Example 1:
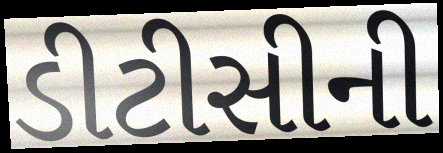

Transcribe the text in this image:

ડીટીસીની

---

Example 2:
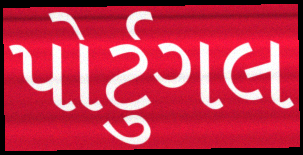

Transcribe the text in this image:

પોર્ટુગલ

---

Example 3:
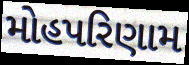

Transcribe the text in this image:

મોહપરિણામ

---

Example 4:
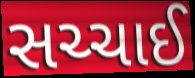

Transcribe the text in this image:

સચ્ચાઈ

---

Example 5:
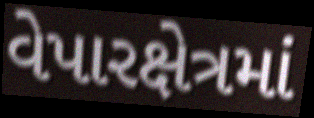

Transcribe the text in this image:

વેપારક્ષેત્રમાં